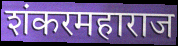
शंकरमहाराज